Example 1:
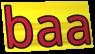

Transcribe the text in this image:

baa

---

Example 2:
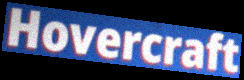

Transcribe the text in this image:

Hovercraft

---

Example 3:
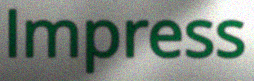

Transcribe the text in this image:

Impress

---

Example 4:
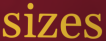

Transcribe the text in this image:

sizes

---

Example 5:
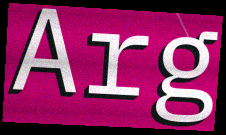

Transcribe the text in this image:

Arg